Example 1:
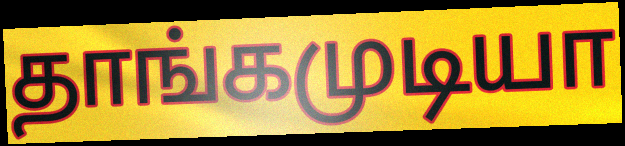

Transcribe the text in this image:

தாங்கமுடியா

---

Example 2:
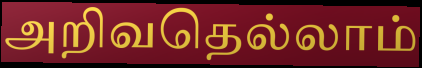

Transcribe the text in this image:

அறிவதெல்லாம்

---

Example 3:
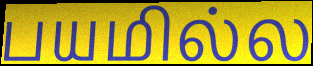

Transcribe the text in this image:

பயமில்ல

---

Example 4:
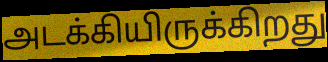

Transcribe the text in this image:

அடக்கியிருக்கிறது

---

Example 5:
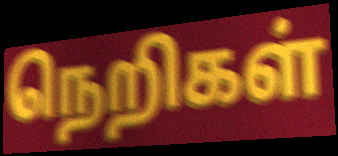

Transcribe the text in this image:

நெறிகள்